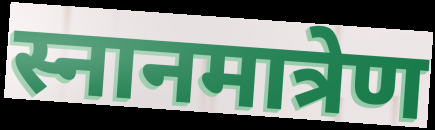
स्नानमात्रेण